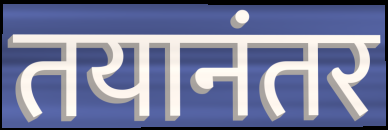
तयानंतर